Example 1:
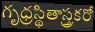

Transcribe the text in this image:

గృధ్రస్థితాస్త్రకరో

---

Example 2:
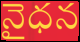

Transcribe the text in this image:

నైధన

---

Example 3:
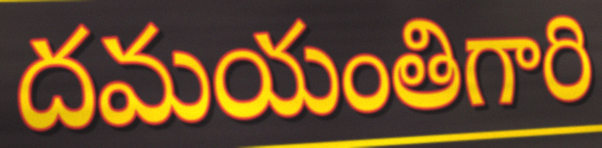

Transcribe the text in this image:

దమయంతిగారి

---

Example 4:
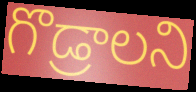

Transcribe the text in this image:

గొడ్రాలని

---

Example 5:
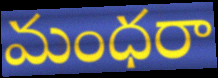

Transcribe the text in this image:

మంధరా